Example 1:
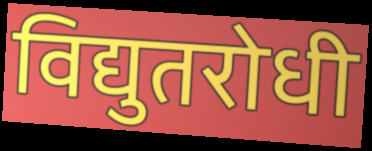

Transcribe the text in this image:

विद्युतरोधी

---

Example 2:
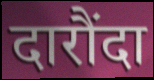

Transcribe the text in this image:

दारौंदा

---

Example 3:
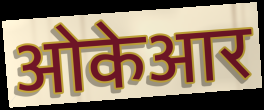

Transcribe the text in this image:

ओकेआर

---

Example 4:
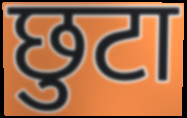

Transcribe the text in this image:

छुटा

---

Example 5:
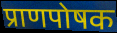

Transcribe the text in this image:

प्राणपोषक